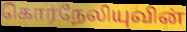
கொர்நேலியுவின்